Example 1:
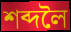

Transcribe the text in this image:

শব্দলৈ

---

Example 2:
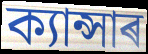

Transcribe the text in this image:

ক্যান্সাৰ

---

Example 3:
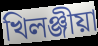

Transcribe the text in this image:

খিলঞ্জীয়া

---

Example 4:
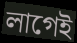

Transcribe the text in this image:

লাগেই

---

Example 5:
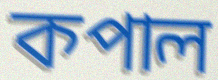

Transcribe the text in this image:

কপাল